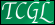
TCGL